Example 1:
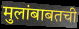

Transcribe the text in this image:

मुलांबाबतची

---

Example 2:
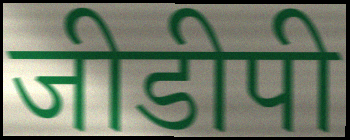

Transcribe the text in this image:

जीडीपी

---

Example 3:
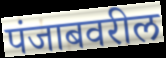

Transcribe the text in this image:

पंजाबवरील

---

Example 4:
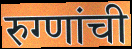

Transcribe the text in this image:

रुग्‍णांची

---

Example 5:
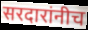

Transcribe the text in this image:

सरदारांनीच